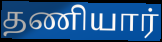
தணியார்